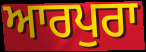
ਆਰਪੁਰਾ